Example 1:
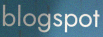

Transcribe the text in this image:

blogspot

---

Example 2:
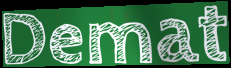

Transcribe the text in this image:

Demat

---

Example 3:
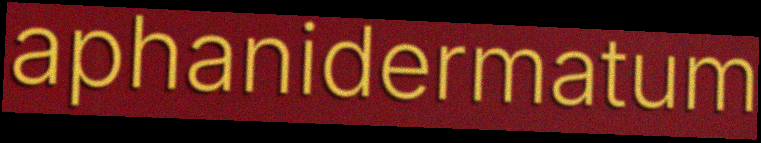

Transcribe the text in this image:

aphanidermatum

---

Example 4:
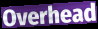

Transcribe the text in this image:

Overhead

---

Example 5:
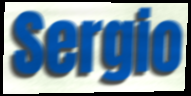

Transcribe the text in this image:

Sergio